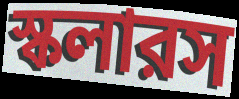
স্কলারস